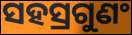
ସହସ୍ରଗୁଣଂ